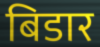
बिडार